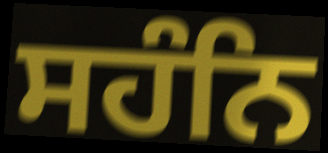
ਸਹੰਨਿ